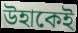
উহাকেই